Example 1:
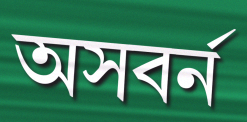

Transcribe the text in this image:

অসবর্ন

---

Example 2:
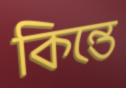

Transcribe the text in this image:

কিন্তে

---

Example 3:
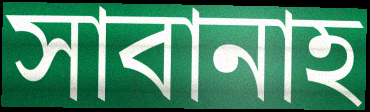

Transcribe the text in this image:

সাবানাহ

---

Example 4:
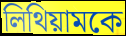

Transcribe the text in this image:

লিথিয়ামকে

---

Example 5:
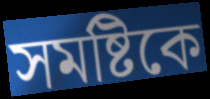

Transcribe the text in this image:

সমষ্টিকে